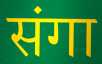
संगा